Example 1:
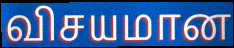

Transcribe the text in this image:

விசயமான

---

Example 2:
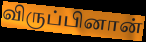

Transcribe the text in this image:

விருப்பினான்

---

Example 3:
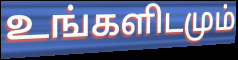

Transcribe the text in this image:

உங்களிடமும்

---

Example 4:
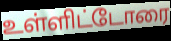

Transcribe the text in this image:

உள்ளிட்டோரை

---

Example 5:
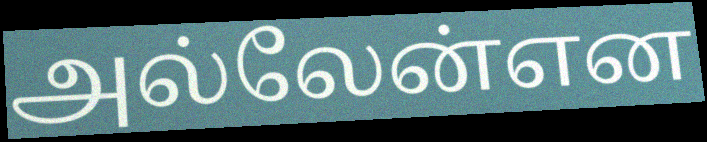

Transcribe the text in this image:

அல்லேன்என